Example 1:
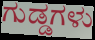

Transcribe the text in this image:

ಗುಡ್ಡಗಳು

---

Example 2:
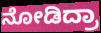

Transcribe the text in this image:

ನೋಡಿದ್ರಾ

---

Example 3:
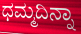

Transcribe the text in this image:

ಧಮ್ಮದಿನ್ನಾ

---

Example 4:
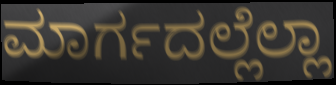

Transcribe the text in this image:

ಮಾರ್ಗದಲ್ಲೆಲ್ಲಾ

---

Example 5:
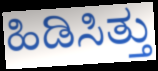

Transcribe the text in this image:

ಹಿಡಿಸಿತ್ತು